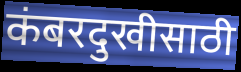
कंबरदुखीसाठी